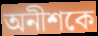
অনীশকে